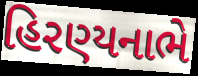
હિરણ્યનાભે